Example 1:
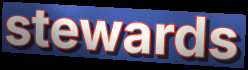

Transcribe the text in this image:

stewards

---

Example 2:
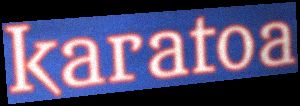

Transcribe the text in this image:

karatoa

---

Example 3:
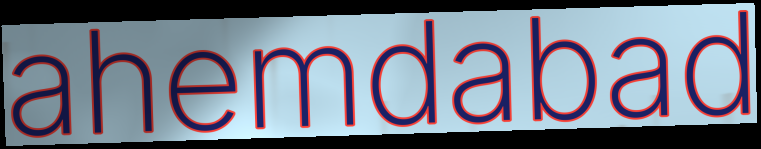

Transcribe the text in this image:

ahemdabad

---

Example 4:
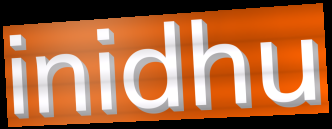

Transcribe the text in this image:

inidhu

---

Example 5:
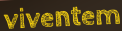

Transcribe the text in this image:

viventem